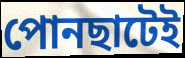
পোনছাটেই